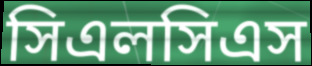
সিএলসিএস